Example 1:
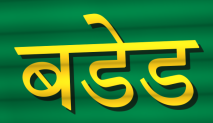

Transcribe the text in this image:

बडेड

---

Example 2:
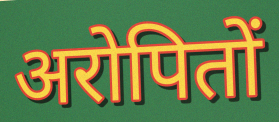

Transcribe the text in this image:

अरोपितों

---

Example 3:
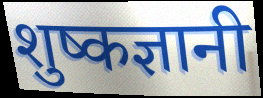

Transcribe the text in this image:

शुष्कज्ञानी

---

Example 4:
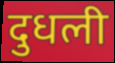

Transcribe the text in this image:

दुधली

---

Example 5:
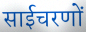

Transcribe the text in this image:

साईचरणों